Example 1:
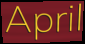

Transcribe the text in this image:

April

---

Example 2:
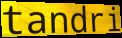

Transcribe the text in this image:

tandri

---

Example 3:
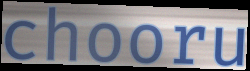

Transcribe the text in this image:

chooru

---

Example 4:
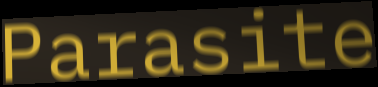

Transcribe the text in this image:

Parasite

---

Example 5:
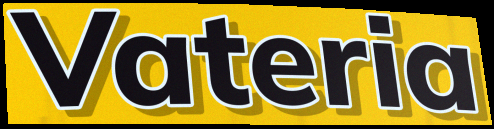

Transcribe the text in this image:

Vateria